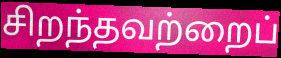
சிறந்தவற்றைப்